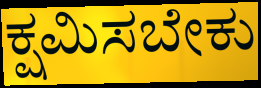
ಕ್ಷಮಿಸಬೇಕು